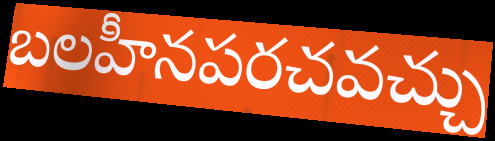
బలహీనపరచవచ్చు